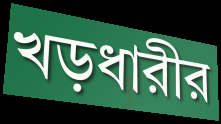
খড়ধারীর